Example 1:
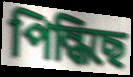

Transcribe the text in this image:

পিন্ধিছে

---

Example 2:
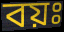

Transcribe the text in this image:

বয়ঃ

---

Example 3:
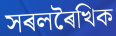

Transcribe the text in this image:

সৰলৰৈখিক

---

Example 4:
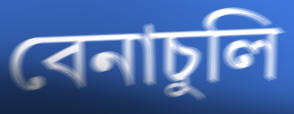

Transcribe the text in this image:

বেনাচুলি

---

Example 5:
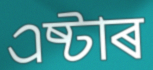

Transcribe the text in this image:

এষ্টাৰ